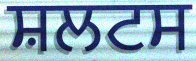
ਸ਼ਲਟਸ